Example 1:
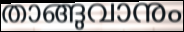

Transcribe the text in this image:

താങ്ങുവാനും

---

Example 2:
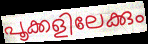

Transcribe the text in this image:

പൂക്കളിലേക്കും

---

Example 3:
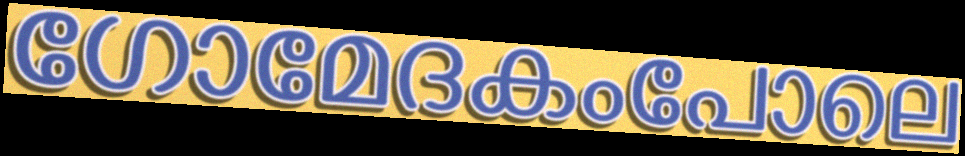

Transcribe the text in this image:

ഗോമേദകംപോലെ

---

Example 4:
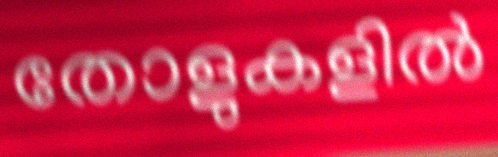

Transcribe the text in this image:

തോളുകളിൽ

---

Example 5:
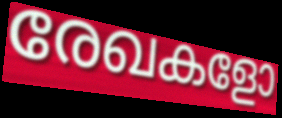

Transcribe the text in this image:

രേഖകളോ